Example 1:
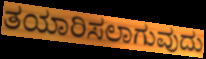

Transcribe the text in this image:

ತಯಾರಿಸಲಾಗುವುದು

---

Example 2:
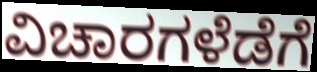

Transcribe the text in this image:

ವಿಚಾರಗಳೆಡೆಗೆ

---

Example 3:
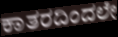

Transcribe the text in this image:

ಕಾತರದಿಂದಲೇ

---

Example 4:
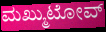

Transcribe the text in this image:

ಮಖ್ಮುಟೋವ್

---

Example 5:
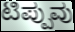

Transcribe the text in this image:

ಟಿಪ್ಪುವು